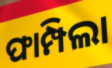
ଫାମ୍ପିଲା